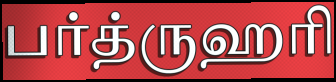
பர்த்ருஹரி